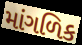
માંગળિક